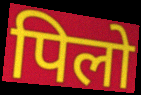
पिलो